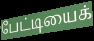
பேட்டியைக்